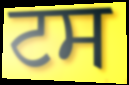
ਟਸ